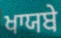
ਖਾਯਬੇ